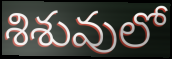
శిశువులో